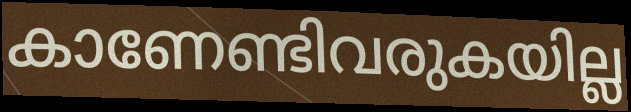
കാണേണ്ടിവരുകയില്ല